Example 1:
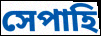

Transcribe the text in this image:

সেপাহি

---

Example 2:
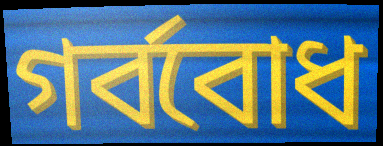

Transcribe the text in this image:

গর্ববোধ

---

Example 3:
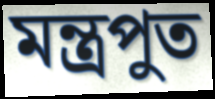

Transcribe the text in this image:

মন্ত্রপুত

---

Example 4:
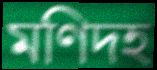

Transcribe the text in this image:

মণিদহ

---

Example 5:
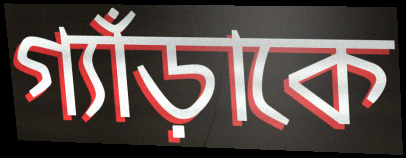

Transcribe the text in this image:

গ্যাঁড়াকে